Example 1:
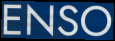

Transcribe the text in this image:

ENSO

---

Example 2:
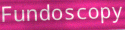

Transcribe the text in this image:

Fundoscopy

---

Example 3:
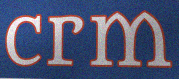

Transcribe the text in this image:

crm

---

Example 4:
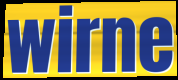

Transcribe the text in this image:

wirne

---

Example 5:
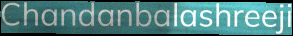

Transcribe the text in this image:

Chandanbalashreeji